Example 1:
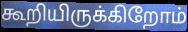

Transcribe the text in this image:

கூறியிருக்கிறோம்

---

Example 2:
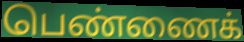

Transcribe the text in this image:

பெண்ணைக்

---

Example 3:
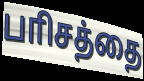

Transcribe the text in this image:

பரிசத்தை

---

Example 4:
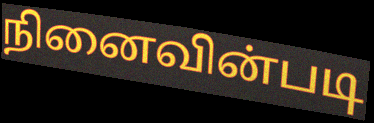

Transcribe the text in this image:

நினைவின்படி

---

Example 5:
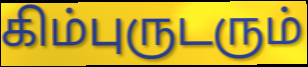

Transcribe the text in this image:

கிம்புருடரும்